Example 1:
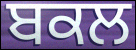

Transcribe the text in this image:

ਬਕਲ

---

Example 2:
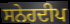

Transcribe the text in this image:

ਸਨੇਹਦੀਪ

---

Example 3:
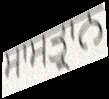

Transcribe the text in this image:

ਸਾਸਤ੍ਰਾਨ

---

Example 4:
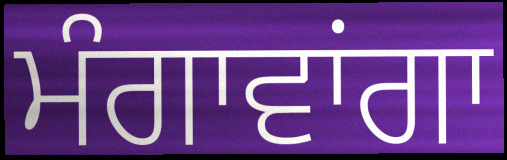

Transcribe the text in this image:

ਮੰਗਾਵਾਂਗਾ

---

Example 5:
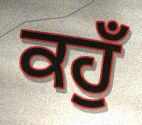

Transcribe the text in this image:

ਕਹੁਁ